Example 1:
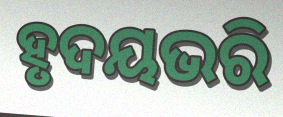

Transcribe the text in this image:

ହୃଦୟଭରି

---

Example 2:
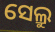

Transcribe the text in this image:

ସେଲ୍ରୁ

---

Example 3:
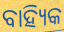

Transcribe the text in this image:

ବାହ୍ୟିକ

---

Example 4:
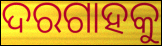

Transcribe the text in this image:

ଦରଗାହକୁ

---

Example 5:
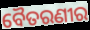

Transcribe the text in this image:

ବୈତରଣୀର